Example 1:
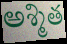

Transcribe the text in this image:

అశ్మిత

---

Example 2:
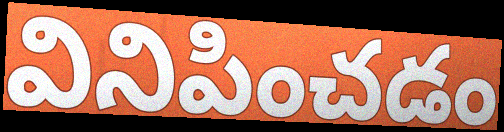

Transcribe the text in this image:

వినిపించడం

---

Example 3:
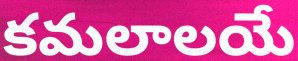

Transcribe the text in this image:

కమలాలయే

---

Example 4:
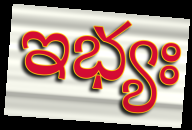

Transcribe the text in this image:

ఇభ్యః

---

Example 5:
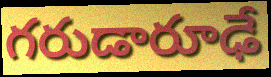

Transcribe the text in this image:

గరుడారూఢే